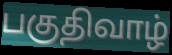
பகுதிவாழ்